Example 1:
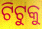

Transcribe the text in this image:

ଟିଟୁକୁ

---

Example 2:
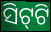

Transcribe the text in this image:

ସିଟ୍‌ଟି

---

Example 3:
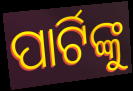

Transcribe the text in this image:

ପାର୍ଟିଙ୍କୁ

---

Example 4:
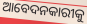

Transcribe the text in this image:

ଆବେଦନକାରୀକୁ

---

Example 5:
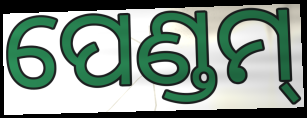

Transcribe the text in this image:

ପେଣ୍ଡମ୍